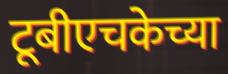
टूबीएचकेच्या